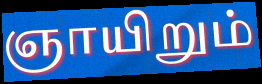
ஞாயிறும்